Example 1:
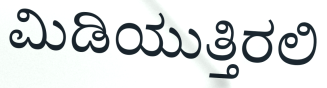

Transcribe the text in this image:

ಮಿಡಿಯುತ್ತಿರಲಿ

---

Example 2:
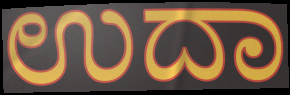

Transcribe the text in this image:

ಉದಾ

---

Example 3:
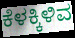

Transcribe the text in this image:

ಕೆಳಕ್ಕಿಳಿವ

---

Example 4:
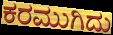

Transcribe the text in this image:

ಕರಮುಗಿದು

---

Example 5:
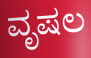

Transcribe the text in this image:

ವೃಷಲ